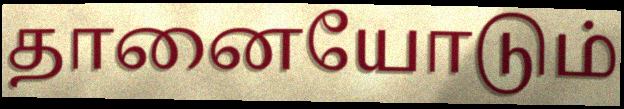
தானையோடும்